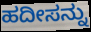
ಹದೀಸನ್ನು